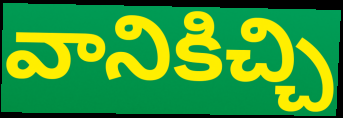
వానికిచ్చి